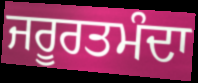
ਜਰੂਰਤਮੰਦਾ